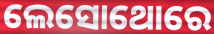
ଲେସୋଥୋରେ